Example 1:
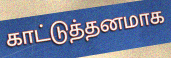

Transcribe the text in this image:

காட்டுத்தனமாக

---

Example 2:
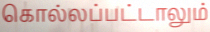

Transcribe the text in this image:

கொல்லப்பட்டாலும்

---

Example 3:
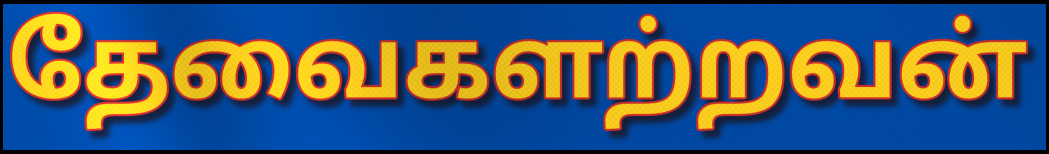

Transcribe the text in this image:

தேவைகளற்றவன்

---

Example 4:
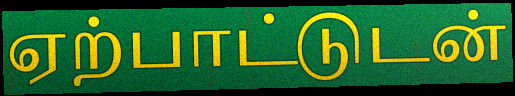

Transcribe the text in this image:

ஏற்பாட்டுடன்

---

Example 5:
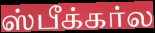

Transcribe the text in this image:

ஸ்பீக்கர்ல